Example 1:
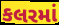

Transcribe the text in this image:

કલરમાં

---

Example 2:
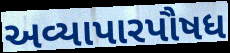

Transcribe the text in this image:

અવ્યાપારપૌષધ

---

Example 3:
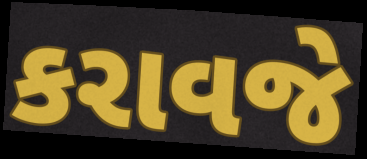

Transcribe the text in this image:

કરાવજે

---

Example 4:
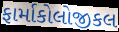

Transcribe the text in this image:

ફાર્માકોલોજીકલ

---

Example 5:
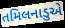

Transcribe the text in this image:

તમિલનાડુએ